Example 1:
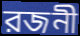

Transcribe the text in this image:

রজনী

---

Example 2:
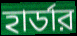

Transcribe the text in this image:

হার্ডার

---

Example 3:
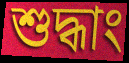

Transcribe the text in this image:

শুদ্ধাং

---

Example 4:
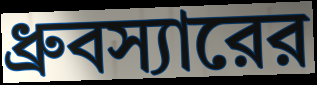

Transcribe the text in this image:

ধ্রুবস্যারের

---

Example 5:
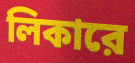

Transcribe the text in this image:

লিকারে